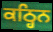
ਕਠ੍ਹਿਨ